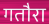
गतौरा